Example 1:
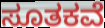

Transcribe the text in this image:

ಸೂತಕವೆ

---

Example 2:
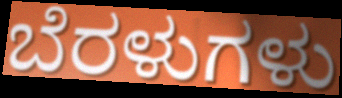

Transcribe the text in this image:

ಬೆರಳುಗಳು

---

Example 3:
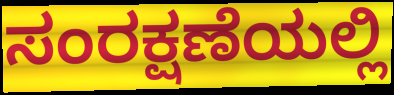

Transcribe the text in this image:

ಸಂರಕ್ಷಣೆಯಲ್ಲಿ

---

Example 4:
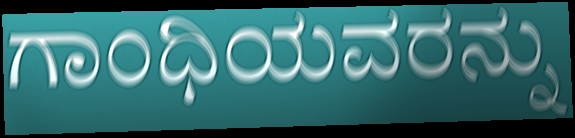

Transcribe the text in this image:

ಗಾಂಧಿಯವರನ್ನು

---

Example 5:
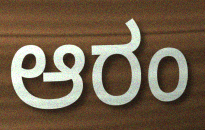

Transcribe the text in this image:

ಆರಂ